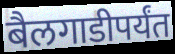
बैलगाडीपर्यंत